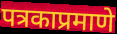
पत्रकाप्रमाणे